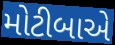
મોટીબાએ